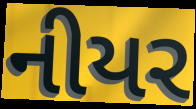
નીયર